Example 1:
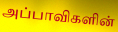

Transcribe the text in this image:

அப்பாவிகளின்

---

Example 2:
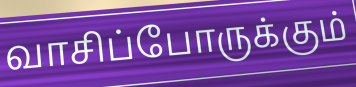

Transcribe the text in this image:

வாசிப்போருக்கும்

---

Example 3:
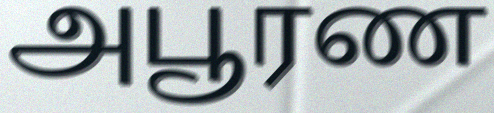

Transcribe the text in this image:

அபூரண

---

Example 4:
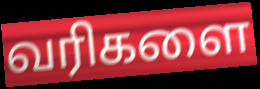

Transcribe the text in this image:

வரிகளை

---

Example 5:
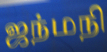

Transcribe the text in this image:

ஜந்மநி